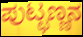
ಪುಟ್ಟಣ್ಣನ